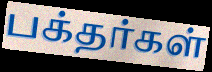
பக்தர்கள்